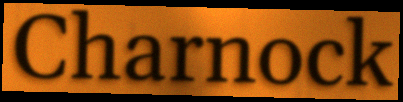
Charnock